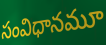
సంవిధానమూ